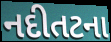
નદીતટના